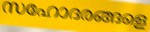
സഹോദരങ്ങളെ